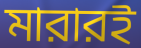
মারারই